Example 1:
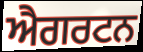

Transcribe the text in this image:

ਐਗਰਟਨ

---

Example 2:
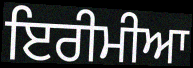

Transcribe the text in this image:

ਇਰੀਮੀਆ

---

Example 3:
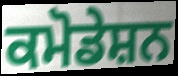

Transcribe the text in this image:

ਕਮੋਡੇਸ਼ਨ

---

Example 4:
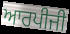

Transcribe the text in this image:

ਆਰਪੀਜੀ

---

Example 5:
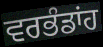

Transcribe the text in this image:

ਵਰਭੰਡਾਂਹ